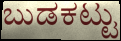
ಬುಡಕಟ್ಟು